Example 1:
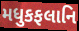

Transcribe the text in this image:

મધુકફલાનિ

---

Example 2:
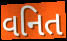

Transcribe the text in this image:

વનિત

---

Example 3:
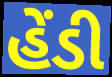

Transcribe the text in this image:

હેંડી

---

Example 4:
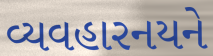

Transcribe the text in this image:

વ્યવહારનયને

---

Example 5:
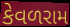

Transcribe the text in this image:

કેવળરામ